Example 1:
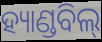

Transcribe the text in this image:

ହ୍ୟାଣ୍ଡବିଲ୍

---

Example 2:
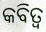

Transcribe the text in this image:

କବିତ୍ବ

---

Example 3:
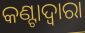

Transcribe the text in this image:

କଣ୍ଟାଦ୍ୱାରା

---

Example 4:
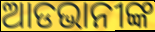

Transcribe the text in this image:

ଆଡଭାନୀଙ୍କ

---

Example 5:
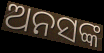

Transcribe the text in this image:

ଅନସଙ୍କ